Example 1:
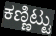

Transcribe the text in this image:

ಕಣ್ಣಿಟ್ಟು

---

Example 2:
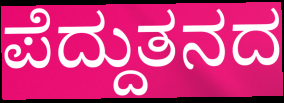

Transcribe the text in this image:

ಪೆದ್ದುತನದ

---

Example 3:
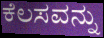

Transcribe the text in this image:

ಕೆಲಸವನ್ನು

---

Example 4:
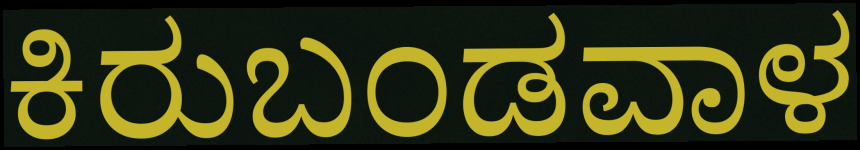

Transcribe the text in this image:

ಕಿರುಬಂಡವಾಳ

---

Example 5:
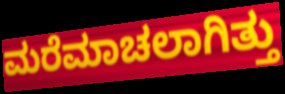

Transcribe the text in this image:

ಮರೆಮಾಚಲಾಗಿತ್ತು